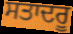
ਸਤਾਦਰੂ